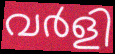
വർളി